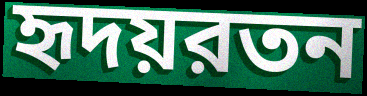
হৃদয়রতন